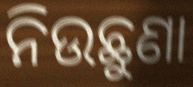
ନିଉଛୁଣା